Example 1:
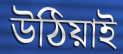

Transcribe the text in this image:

উঠিয়াই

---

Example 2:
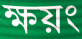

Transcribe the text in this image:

ক্ষয়ং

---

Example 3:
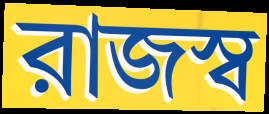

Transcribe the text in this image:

রাজস্ব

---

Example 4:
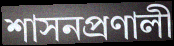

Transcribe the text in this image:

শাসনপ্রণালী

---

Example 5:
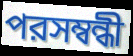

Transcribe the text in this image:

পরসম্বন্ধী